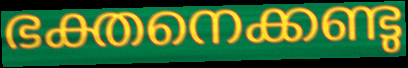
ഭക്തനെക്കണ്ടു